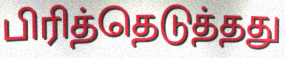
பிரித்தெடுத்தது